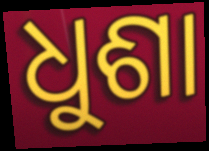
ଧୁଶା